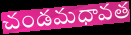
చండమధావత